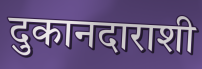
दुकानदाराशी